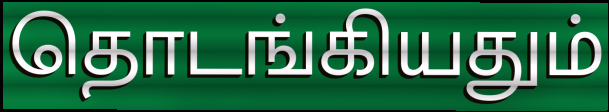
தொடங்கியதும்